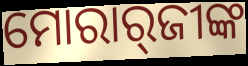
ମୋରାର୍‌ଜୀଙ୍କ